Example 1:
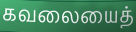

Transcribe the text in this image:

கவலையைத்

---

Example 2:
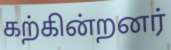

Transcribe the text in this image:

கற்கின்றனர்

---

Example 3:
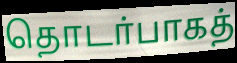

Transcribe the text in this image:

தொடர்பாகத்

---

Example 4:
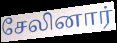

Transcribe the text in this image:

சேலினார்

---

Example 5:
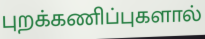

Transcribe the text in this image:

புறக்கணிப்புகளால்